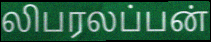
லிபரலப்பன்